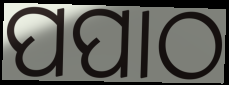
ପପାଠ